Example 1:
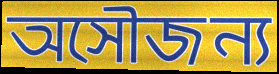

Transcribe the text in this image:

অসৌজন্য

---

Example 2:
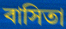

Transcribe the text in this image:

বাসিতা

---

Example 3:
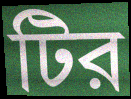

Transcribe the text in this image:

টির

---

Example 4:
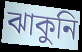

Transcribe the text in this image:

ঝাকুনি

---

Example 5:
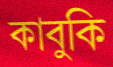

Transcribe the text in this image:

কাবুকি